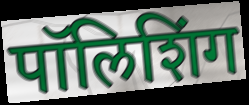
पॉलिशिंग